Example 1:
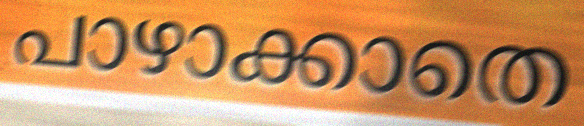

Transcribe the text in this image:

പാഴാക്കാതെ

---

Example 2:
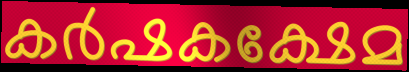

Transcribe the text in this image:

കർഷകക്ഷേമ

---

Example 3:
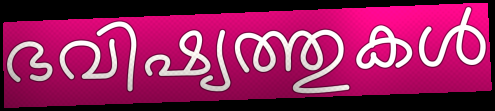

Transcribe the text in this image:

ഭവിഷ്യത്തുകൾ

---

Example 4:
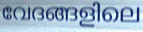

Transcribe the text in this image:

വേദങ്ങളിലെ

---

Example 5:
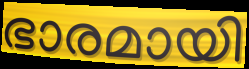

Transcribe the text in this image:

ഭാരമായി